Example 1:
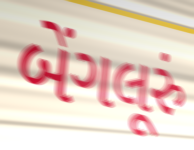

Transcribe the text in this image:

બેંગલૂરું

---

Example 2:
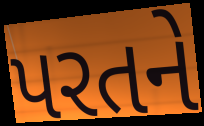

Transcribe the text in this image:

પરતને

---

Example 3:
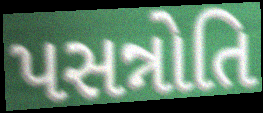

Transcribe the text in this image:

પસન્નોતિ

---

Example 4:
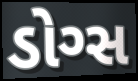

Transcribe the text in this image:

ડોગ્સ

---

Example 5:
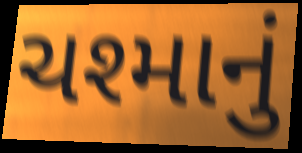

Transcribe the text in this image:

ચશ્માનું